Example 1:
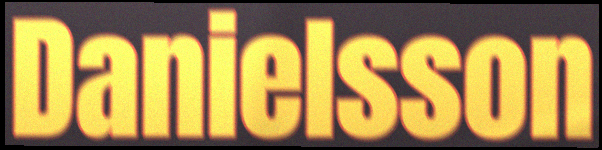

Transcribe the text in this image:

Danielsson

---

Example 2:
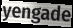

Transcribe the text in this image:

yengade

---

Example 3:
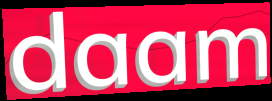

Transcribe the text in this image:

daam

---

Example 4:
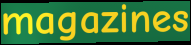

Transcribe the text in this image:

magazines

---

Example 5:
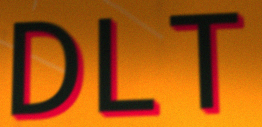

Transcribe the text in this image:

DLT